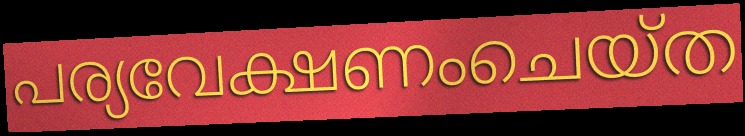
പര്യവേക്ഷണംചെയ്ത